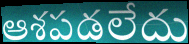
ఆశపడలేదు